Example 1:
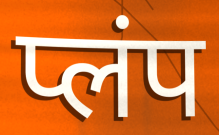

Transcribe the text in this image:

प्लंप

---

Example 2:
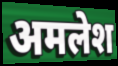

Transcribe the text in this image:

अमलेश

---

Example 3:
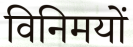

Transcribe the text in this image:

विनिमयों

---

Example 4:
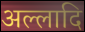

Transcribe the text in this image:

अल्लादि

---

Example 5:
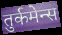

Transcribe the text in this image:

तुर्कमेन्स